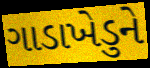
ગાડાખેડુને